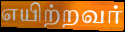
எயிற்றவர்